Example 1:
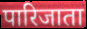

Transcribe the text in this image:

पारिजाता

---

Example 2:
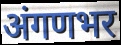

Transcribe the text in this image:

अंगणभर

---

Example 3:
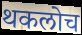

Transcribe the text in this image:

थकलोच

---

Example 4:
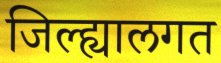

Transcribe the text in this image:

जिल्ह्यालगत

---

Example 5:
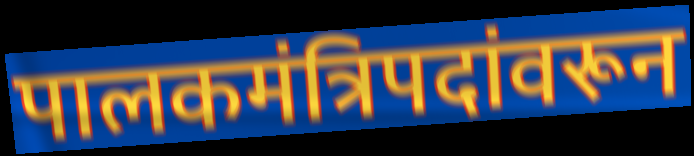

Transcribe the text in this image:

पालकमंत्रिपदांवरून